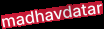
madhavdatar